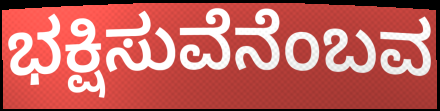
ಭಕ್ಷಿಸುವೆನೆಂಬವ